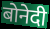
बोनेदी